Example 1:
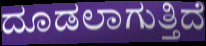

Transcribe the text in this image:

ದೂಡಲಾಗುತ್ತಿದೆ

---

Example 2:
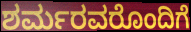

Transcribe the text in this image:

ಶರ್ಮರವರೊಂದಿಗೆ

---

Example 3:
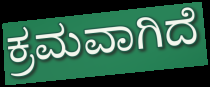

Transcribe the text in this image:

ಕ್ರಮವಾಗಿದೆ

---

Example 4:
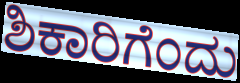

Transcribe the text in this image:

ಶಿಕಾರಿಗೆಂದು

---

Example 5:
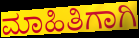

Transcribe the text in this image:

ಮಾಹಿತಿಗಾಗಿ